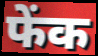
फेंक